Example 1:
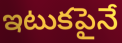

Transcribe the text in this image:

ఇటుకపైనే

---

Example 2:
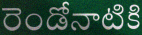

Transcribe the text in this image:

రెండోనాటికి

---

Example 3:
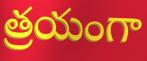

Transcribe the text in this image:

త్రయంగా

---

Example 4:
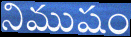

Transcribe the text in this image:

నిముషం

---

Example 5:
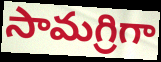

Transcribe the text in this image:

సామగ్రిగా